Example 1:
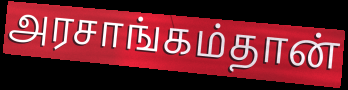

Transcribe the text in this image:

அரசாங்கம்தான்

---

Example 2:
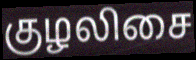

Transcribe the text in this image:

குழலிசை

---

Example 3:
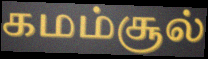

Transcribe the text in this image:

கமம்சூல்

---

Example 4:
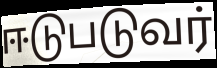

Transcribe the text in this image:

ஈடுபடுவர்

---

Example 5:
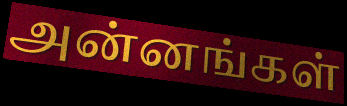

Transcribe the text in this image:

அன்னங்கள்